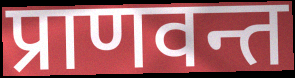
प्राणवन्त